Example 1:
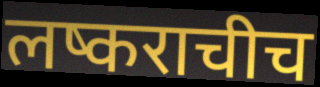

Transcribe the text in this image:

लष्कराचीच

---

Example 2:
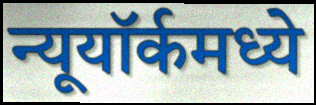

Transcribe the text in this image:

न्यूयॉर्कमध्ये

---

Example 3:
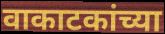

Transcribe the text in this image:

वाकाटकांच्या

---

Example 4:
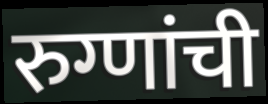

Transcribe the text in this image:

रुग्‍णांची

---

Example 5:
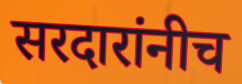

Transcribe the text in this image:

सरदारांनीच